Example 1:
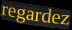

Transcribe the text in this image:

regardez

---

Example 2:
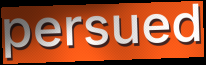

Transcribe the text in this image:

persued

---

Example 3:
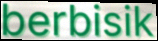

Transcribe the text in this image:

berbisik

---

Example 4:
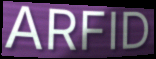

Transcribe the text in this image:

ARFID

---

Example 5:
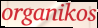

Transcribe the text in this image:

organikos